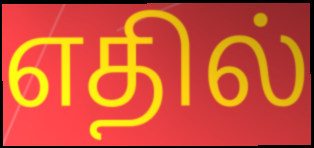
எதில்